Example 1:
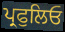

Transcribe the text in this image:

ਪ੍ਰਫੁਲਿਓ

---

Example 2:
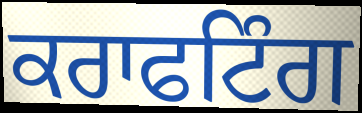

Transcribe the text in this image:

ਕਰਾਫਟਿੰਗ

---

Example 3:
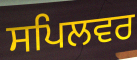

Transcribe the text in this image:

ਸਪਿਲਵਰ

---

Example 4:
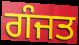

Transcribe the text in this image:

ਗੰਜਤ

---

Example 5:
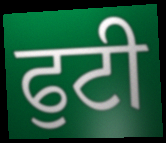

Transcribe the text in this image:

ਫੁਟੀ